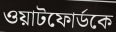
ওয়াটফোর্ডকে